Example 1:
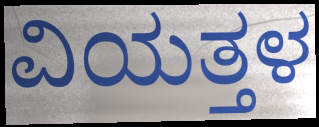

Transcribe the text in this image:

ವಿಯತ್ತಳ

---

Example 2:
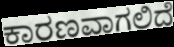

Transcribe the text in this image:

ಕಾರಣವಾಗಲಿದೆ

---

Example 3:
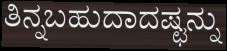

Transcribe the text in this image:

ತಿನ್ನಬಹುದಾದಷ್ಟನ್ನು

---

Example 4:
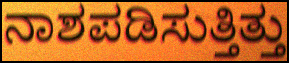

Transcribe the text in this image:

ನಾಶಪಡಿಸುತ್ತಿತ್ತು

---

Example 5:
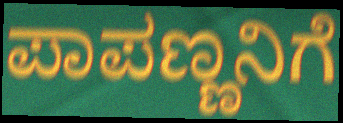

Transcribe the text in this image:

ಪಾಪಣ್ಣನಿಗೆ